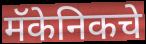
मॅकेनिकचे